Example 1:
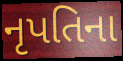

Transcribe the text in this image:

નૃપતિના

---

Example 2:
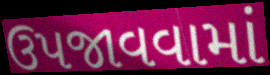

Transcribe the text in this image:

ઉપજાવવામાં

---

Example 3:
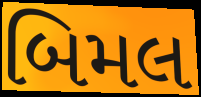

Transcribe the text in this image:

બિમલ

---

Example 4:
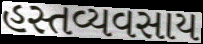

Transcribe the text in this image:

હસ્તવ્યવસાય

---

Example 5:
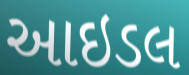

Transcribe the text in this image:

આઇડલ